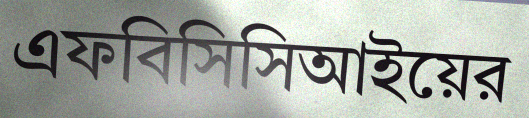
এফবিসিসিআইয়ের